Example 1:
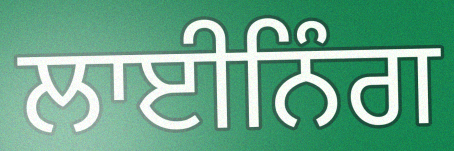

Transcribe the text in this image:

ਲਾਈਨਿੰਗ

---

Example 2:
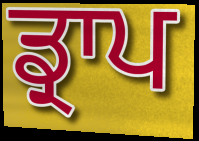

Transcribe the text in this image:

ਡ੍ਰਾਪ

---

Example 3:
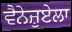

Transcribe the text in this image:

ਵੈਨੇਜ਼ੁਏਲਾ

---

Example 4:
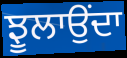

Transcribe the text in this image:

ਝੂਲਾਉਂਦਾ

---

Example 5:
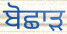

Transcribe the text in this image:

ਬੋਛਾੜ